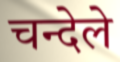
चन्देले